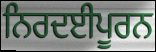
ਨਿਰਦਈਪੂਰਨ